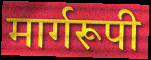
मार्गरूपी